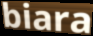
biara